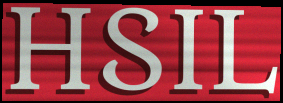
HSIL